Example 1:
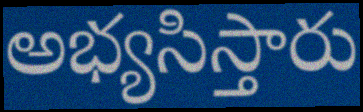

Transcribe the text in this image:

అభ్యసిస్తారు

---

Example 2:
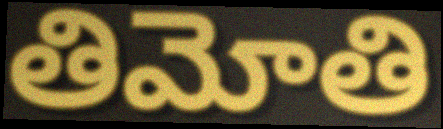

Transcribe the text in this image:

తిమోతి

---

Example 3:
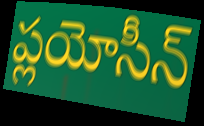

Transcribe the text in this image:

ప్లయోసీన్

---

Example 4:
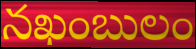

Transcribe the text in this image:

నఖంబులం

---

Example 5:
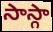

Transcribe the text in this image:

సాస్గా